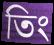
তিং